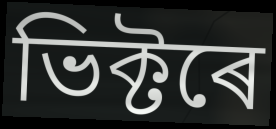
ভিক্টৰে